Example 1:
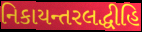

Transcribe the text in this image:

નિકાયન્તરલદ્ધીહિ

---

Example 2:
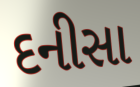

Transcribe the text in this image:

દનીસા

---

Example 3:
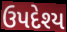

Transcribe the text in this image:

ઉપદેશ્ય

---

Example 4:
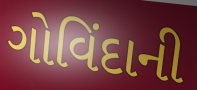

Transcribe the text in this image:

ગોવિંદાની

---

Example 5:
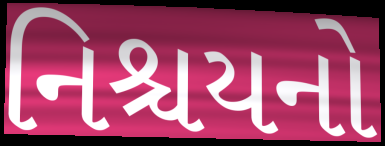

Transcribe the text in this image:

નિશ્ચયનો